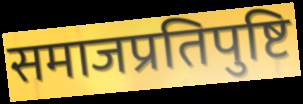
समाजप्रतिपुष्टि